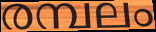
രമ്പലം